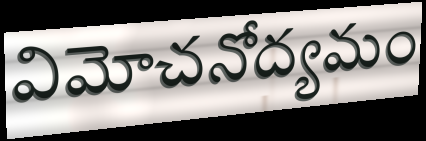
విమోచనోద్యమం